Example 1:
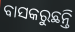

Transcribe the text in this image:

ବାସକରୁଛନ୍ତି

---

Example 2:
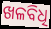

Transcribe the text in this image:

ଖଳବିଧି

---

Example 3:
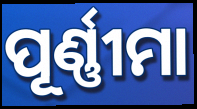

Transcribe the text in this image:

ପୂର୍ଣ୍ଣୀମା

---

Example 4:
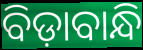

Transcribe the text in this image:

ବିଡ଼ାବାନ୍ଧି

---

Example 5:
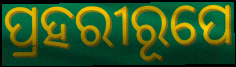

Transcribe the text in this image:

ପ୍ରହରୀରୂପେ